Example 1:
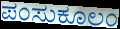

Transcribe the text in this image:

ಪಂಸುಕೂಲಂ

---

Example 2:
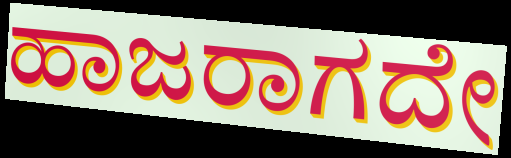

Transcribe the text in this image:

ಹಾಜರಾಗದೇ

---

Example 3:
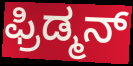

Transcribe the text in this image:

ಫ್ರಿಡ್ಮನ್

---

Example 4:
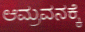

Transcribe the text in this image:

ಆಮ್ರವನಕ್ಕೆ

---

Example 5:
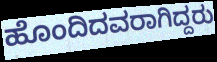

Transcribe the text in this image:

ಹೊಂದಿದವರಾಗಿದ್ದರು